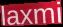
laxmi